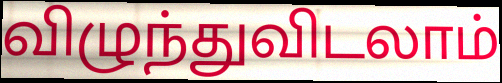
விழுந்துவிடலாம்